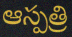
ఆస్పత్రి